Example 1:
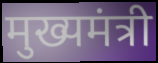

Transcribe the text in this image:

मुख्‍यमंत्री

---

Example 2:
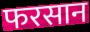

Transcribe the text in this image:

फरसान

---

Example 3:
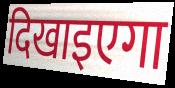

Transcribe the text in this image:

दिखाइएगा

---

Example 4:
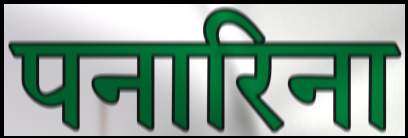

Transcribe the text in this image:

पनारिना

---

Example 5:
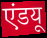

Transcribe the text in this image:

एंडयू